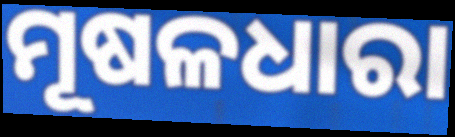
ମୂଷଳଧାରା